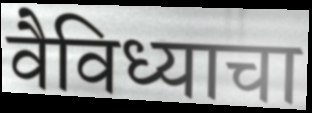
वैविध्याचा